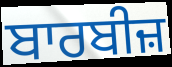
ਬਾਰਬੀਜ਼